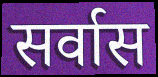
सर्वास